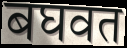
बघवत